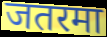
जतरमा